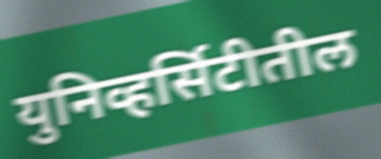
युनिव्हर्सिटीतील